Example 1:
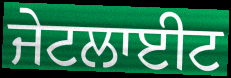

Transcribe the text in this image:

ਜੇਟਲਾਈਟ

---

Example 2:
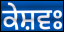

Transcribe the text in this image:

ਕੇਸ਼ਵਃ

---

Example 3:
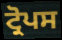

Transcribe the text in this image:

ਟ੍ਰੋਪਸ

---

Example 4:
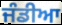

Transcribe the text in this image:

ਜੰਡੀਆ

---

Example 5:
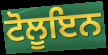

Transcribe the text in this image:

ਟੋਲੂਇਨ